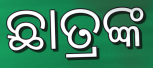
ଛାତ୍ରଙ୍କ